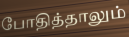
போதித்தாலும்